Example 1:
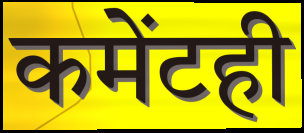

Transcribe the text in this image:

कमेंटही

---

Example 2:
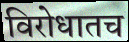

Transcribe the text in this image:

विरोधातच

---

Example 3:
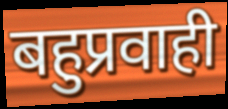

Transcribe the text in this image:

बहुप्रवाही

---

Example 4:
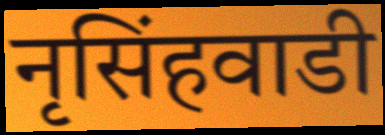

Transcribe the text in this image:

नृसिंहवाडी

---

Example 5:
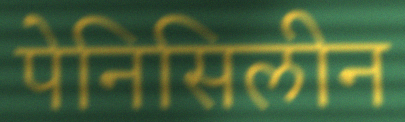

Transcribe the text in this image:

पेनिसिलीन